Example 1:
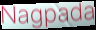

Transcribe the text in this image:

Nagpada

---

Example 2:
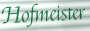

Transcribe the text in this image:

Hofmeister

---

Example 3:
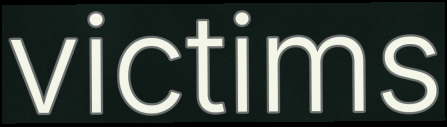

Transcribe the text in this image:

victims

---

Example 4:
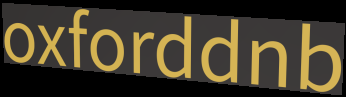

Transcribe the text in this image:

oxforddnb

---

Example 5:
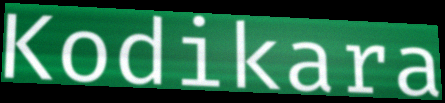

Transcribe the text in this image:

Kodikara